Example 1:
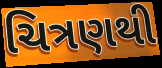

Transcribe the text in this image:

ચિત્રણથી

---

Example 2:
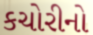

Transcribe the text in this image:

કચોરીનો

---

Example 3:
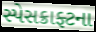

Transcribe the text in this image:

સ્પેસક્રાફ્ટના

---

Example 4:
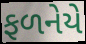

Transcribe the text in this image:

ફળનેયે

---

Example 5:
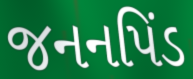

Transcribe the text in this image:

જનનપિંડ